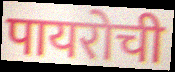
पायरोची